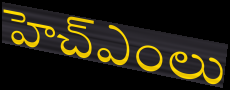
హెచ్ఎంలు